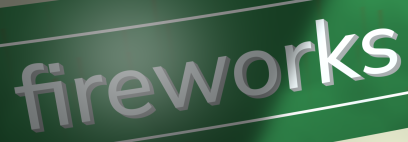
fireworks